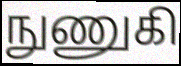
நுணுகி